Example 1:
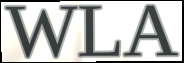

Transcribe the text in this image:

WLA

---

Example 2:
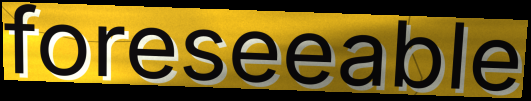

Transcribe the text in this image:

foreseeable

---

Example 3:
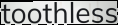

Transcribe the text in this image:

toothless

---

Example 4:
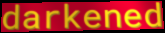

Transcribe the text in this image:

darkened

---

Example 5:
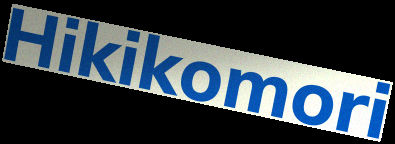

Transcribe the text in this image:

Hikikomori